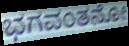
ಭಗವಂತನೋ